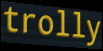
trolly